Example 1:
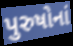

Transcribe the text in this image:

પુરુષોનાં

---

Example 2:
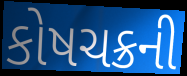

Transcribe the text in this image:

કોષચક્રની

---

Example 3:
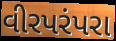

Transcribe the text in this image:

વીરપરંપરા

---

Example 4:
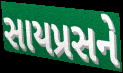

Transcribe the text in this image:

સાયપ્રસને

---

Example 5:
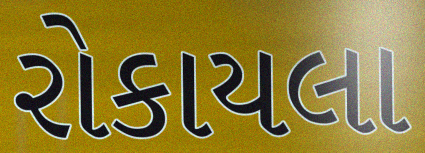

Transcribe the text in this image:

રોકાયલા